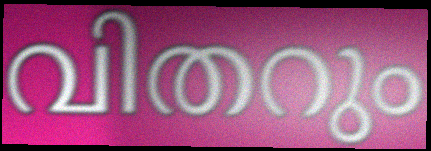
വിതറും